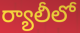
ర్యాలీలో